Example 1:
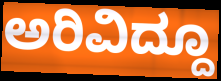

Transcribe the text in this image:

ಅರಿವಿದ್ದೂ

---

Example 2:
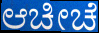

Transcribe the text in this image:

ಆಚೀಚೆ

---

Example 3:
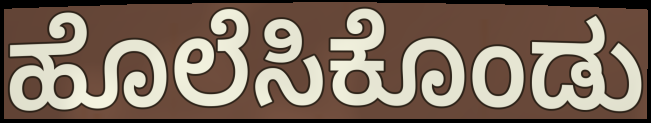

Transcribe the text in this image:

ಹೊಲೆಸಿಕೊಂಡು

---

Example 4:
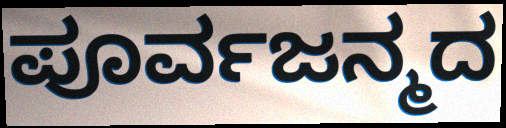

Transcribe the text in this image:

ಪೂರ್ವಜನ್ಮದ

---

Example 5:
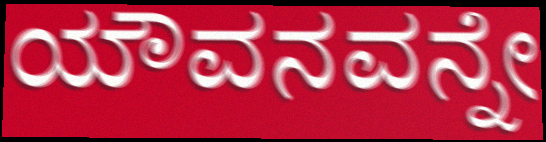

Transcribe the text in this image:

ಯೌವನವನ್ನೇ